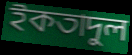
ইকতাদুল